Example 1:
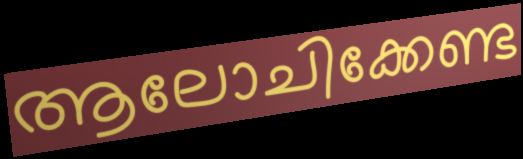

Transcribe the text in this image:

ആലോചിക്കേണ്ട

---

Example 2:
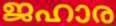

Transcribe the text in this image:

ജഹാര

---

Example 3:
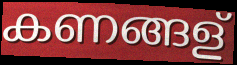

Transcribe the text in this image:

കണങ്ങള്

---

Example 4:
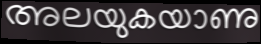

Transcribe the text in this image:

അലയുകയാണു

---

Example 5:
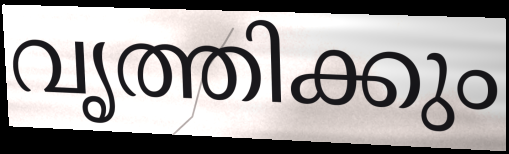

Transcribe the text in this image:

വൃത്തിക്കും